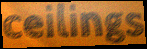
ceilings